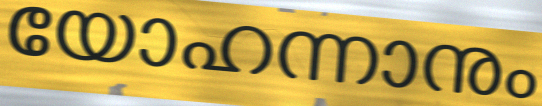
യോഹന്നാനും